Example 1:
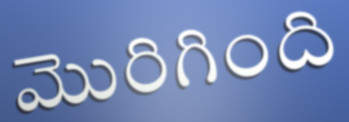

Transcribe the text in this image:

మొరిగింది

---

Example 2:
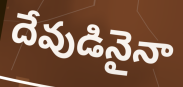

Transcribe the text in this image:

దేవుడినైనా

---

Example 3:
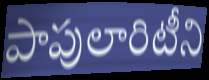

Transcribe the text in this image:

పాపులారిటీని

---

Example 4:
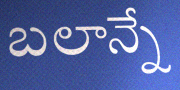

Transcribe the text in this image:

బలాన్నే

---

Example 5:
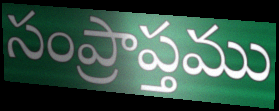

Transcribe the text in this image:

సంప్రాప్తము